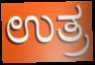
ಉತ್ರ